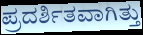
ಪ್ರದರ್ಶಿತವಾಗಿತ್ತು